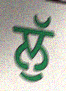
ਲੁੱ